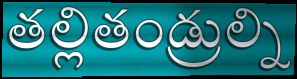
తల్లితండ్రుల్ని